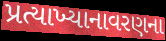
પ્રત્યાખ્યાનાવરણના